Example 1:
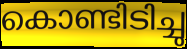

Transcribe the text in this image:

കൊണ്ടിടിച്ചു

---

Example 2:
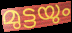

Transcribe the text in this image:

മുട്ടയും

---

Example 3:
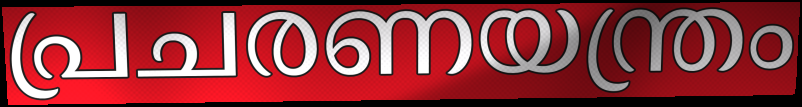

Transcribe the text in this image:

പ്രചരണയന്ത്രം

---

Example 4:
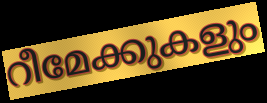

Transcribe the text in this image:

റീമേക്കുകളും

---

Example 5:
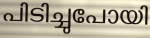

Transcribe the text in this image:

പിടിച്ചുപോയി